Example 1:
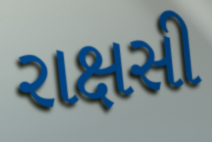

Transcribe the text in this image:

રાક્ષસી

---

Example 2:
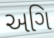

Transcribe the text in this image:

અગિ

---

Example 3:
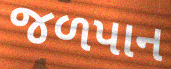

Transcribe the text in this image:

જળપાન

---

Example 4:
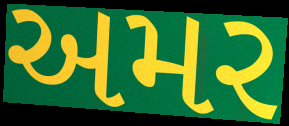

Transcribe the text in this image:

અમર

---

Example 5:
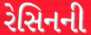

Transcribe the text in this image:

રેસિનની